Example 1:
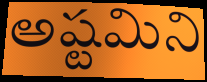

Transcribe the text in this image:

అష్టమిని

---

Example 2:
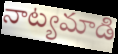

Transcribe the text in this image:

నాట్యమాడి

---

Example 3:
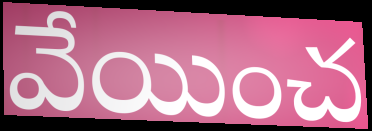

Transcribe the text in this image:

వేయించ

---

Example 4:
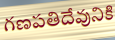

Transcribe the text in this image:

గణపతిదేవునికి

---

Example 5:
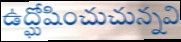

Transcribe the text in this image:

ఉద్ఘోషించుచున్నవి